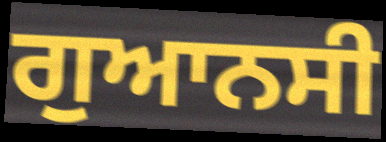
ਗੁਆਨਸੀ